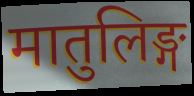
मातुलिङ्ग